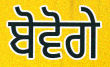
ਬੋਵੋਗੇ